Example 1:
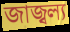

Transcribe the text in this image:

জাজ্বল্য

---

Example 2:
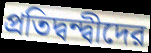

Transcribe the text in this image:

প্রতিদ্বন্দ্বীদের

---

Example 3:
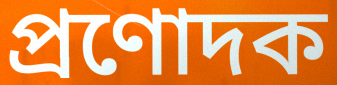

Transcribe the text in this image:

প্রণোদক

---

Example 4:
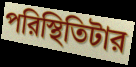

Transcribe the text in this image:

পরিস্থিতিটার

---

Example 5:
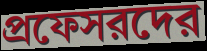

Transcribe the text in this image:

প্রফেসরদের